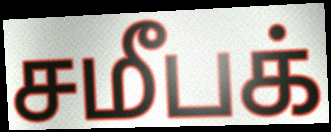
சமீபக்